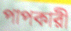
পাপকারী